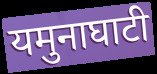
यमुनाघाटी